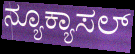
ನ್ಯೂಕ್ಯಾಸಲ್